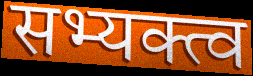
सभ्यक्त्व